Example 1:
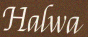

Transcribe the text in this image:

Halwa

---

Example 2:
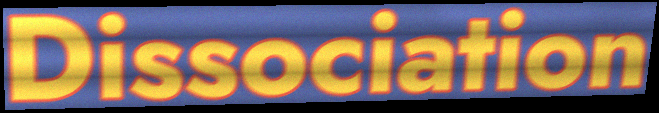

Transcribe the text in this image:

Dissociation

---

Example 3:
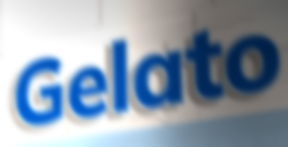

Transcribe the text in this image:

Gelato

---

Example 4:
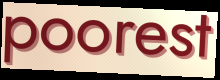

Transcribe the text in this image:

poorest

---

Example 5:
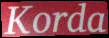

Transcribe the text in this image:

Korda